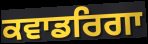
ਕਵਾਡਰਿਗਾ